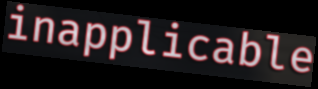
inapplicable